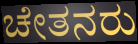
ಚೇತನರು